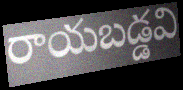
రాయబడ్డవి